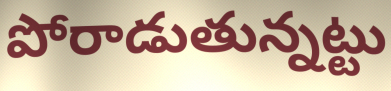
పోరాడుతున్నట్టు